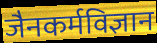
जैनकर्मविज्ञान